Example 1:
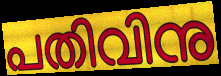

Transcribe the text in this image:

പതിവിനു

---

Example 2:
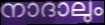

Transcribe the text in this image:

നാദാലും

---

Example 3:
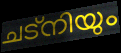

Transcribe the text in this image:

ചട്നിയും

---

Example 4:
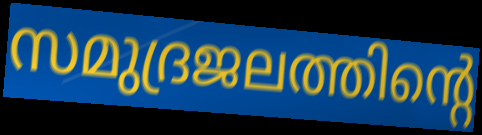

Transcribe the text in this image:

സമുദ്രജലത്തിന്റെ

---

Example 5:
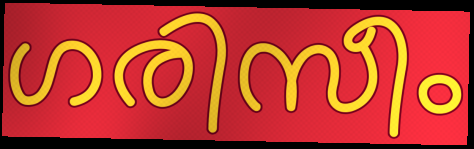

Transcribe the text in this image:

ഗരിസീം